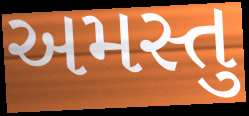
અમસ્તુ